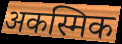
अकस्मिक